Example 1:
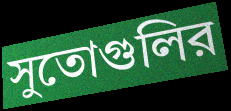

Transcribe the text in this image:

সুতোগুলির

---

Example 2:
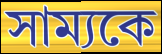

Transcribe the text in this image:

সাম্যকে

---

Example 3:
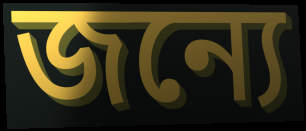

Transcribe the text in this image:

জন্যে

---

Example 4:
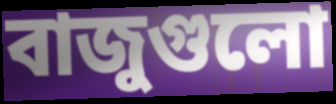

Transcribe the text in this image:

বাজুগুলো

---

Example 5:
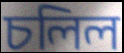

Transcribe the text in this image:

চলিল